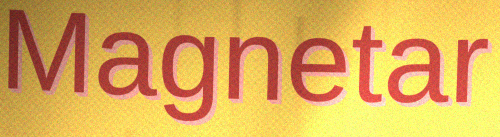
Magnetar